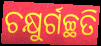
ଚକ୍ଷୁର୍ଗଚ୍ଛତି